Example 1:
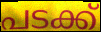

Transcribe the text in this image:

പടക്ക്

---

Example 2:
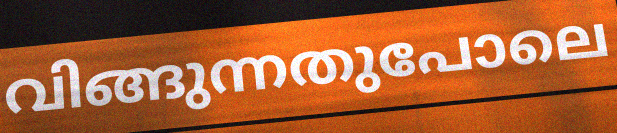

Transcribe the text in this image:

വിങ്ങുന്നതുപോലെ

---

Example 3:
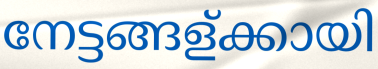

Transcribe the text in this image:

നേട്ടങ്ങള്ക്കായി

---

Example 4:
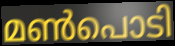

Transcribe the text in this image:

മൺപൊടി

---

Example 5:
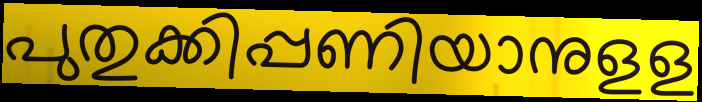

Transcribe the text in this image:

പുതുക്കിപ്പണിയാനുളള